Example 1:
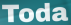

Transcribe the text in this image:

Toda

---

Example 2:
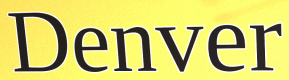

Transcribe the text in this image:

Denver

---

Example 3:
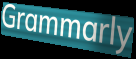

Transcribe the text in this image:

Grammarly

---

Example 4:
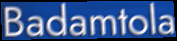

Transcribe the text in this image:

Badamtola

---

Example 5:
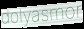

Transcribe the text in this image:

dolyasmor